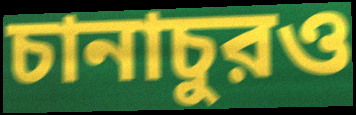
চানাচুরও